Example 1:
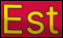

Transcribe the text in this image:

Est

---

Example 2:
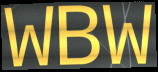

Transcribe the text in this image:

WBW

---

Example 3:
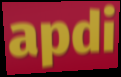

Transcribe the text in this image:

apdi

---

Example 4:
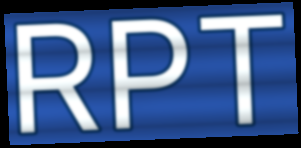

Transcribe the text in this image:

RPT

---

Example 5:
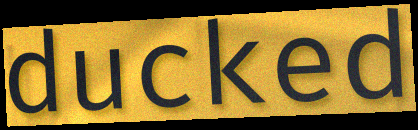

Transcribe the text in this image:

ducked